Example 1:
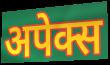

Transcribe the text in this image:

अपेक्स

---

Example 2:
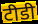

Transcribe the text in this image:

टीडी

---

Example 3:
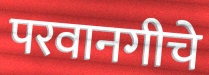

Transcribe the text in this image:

परवानगीचे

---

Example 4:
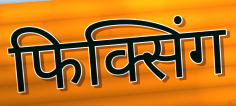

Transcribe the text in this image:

फिक्सिंग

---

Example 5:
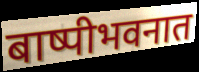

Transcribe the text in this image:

बाष्पीभवनात